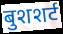
बुशशर्ट